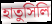
হাতুসিলি